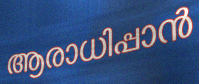
ആരാധിപ്പാൻ